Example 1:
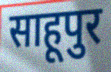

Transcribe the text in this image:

साहूपुर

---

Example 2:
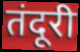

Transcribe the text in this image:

तंदूरी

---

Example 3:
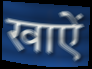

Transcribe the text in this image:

खाऐं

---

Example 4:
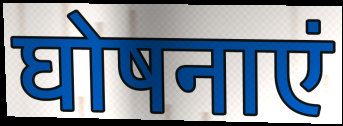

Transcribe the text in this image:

घोषनाएं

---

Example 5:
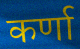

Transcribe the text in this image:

कर्णा